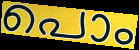
പൊം